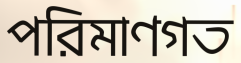
পরিমাণগত